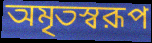
অমৃতস্বরূপ